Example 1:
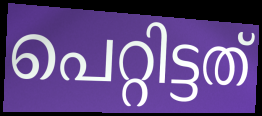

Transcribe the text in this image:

പെറ്റിട്ടത്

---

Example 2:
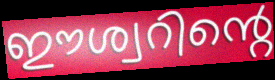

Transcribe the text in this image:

ഈശ്വറിന്റെ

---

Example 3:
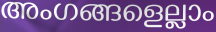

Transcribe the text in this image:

അംഗങ്ങളെല്ലാം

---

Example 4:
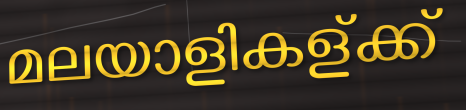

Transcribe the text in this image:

മലയാളികള്ക്ക്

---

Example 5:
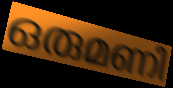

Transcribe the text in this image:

ഒരുമണി